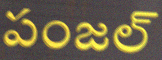
పంజల్